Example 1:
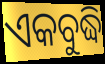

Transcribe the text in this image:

ଏକବୁଦ୍ଧି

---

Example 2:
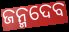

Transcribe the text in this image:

ଜନ୍ମଦେବ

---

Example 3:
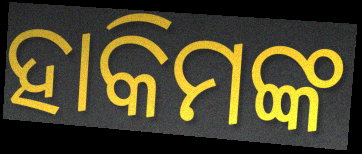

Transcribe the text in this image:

ହାକିମଙ୍କ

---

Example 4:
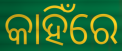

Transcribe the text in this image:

କାହିଁରେ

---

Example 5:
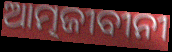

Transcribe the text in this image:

ଆତ୍ମଜୀବୀନୀ